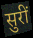
सुरीं